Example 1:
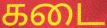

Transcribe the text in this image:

கடை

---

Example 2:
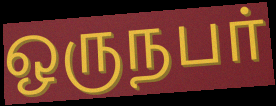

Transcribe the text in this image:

ஒருநபர்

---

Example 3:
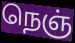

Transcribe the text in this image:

நெஞ்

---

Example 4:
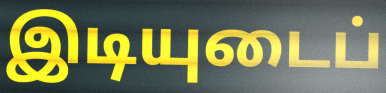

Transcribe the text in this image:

இடியுடைப்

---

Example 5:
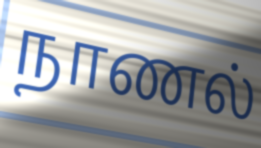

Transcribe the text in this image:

நாணல்